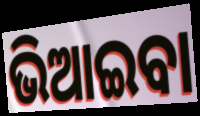
ଭିଆଇବା